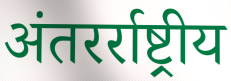
अंतरर्राष्ट्रीय